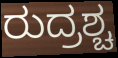
ರುದ್ರಶ್ಚ